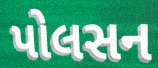
પોલસન